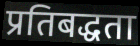
प्रतिबद्धता